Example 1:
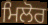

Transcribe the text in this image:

ਮਿਲੋਰ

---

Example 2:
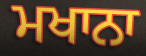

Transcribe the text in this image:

ਮਖਾਨਾ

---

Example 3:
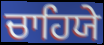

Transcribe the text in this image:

ਚਾਹਿਯੇ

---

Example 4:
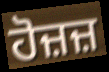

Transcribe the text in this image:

ਹੋਜ਼ਜ਼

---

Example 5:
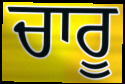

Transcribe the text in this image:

ਚਾਰੂ